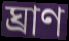
ঘ্রাণ